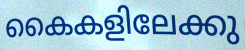
കൈകളിലേക്കു